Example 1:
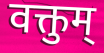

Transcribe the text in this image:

वक्तुम्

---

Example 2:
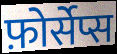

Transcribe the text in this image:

फ़ोर्सेप्स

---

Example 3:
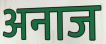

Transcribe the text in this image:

अनाज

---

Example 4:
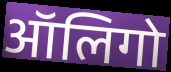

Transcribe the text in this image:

ऑलिगो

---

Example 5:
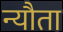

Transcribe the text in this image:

न्यौता